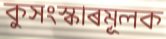
কুসংস্কাৰমূলক